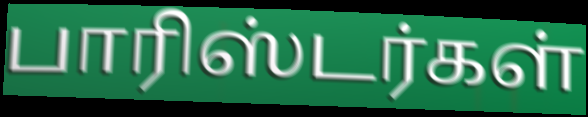
பாரிஸ்டர்கள்